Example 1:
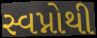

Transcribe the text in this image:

સ્વપ્નોથી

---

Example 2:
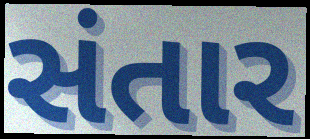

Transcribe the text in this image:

સંતાર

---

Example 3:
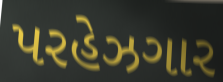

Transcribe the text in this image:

પરહેઝગાર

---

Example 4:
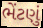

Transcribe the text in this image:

ભેંટણું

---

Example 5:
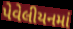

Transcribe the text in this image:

પેવેલીયનમાં